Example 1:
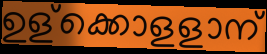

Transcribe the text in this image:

ഉള്ക്കൊളളാന്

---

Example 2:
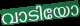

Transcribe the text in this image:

വാടിയോ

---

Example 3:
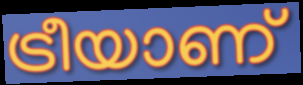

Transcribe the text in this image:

ട്രീയാണ്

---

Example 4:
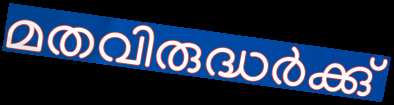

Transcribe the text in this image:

മതവിരുദ്ധർക്കു്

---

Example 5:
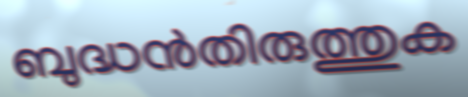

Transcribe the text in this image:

ബുദ്ധൻതിരുത്തുക